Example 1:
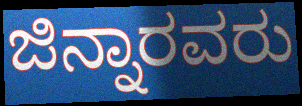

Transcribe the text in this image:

ಜಿನ್ನಾರವರು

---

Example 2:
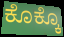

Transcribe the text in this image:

ಕೊಕ್ಕೊ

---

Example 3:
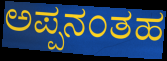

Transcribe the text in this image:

ಅಪ್ಪನಂತಹ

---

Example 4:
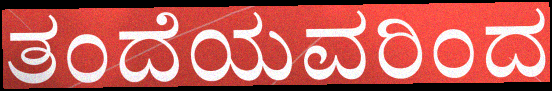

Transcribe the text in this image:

ತಂದೆಯವರಿಂದ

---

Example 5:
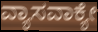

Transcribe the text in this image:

ವ್ಯಾಸವಾಕ್ಯೇ